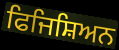
ਫਿਜਿਸ਼ਿਅਨ